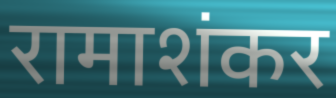
रामाशंकर